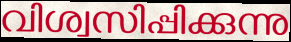
വിശ്വസിപ്പിക്കുന്നു